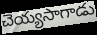
చెయ్యసాగాడు